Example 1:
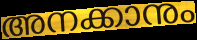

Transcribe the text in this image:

അനക്കാനും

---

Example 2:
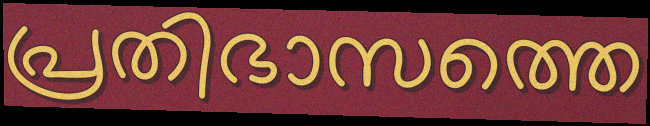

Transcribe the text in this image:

പ്രതിഭാസത്തെ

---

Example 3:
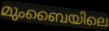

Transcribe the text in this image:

മുംബൈയിലെ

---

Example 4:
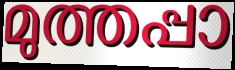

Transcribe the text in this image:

മുത്തപ്പാ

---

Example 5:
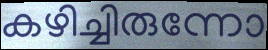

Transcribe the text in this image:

കഴിച്ചിരുന്നോ